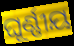
ଘୂର୍ଣ୍ଣୀୟ